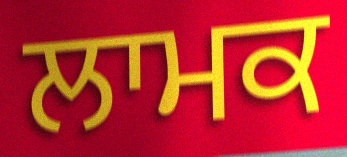
ਲਾਮਕ